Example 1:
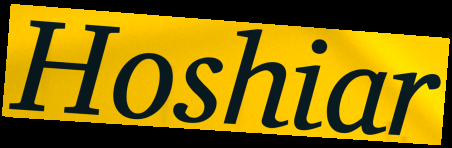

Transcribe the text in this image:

Hoshiar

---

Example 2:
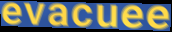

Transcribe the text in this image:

evacuee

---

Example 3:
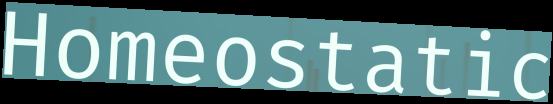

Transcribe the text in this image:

Homeostatic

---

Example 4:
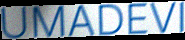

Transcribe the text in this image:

UMADEVI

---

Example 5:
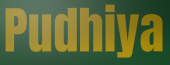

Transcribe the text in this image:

Pudhiya